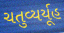
ચતુવ્યર્યૂહ